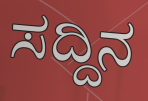
ಸದ್ದಿನ